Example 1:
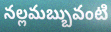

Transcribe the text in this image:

నల్లమబ్బువంటి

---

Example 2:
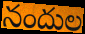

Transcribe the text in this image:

నందుల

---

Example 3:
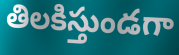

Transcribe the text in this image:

తిలకిస్తుండగా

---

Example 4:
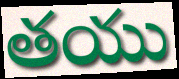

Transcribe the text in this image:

తయు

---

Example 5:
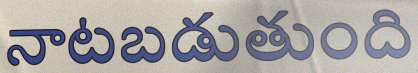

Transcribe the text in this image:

నాటబడుతుంది